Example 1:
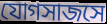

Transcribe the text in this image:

যোগসাজসে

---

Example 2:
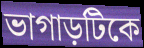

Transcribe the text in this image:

ভাগাড়টিকে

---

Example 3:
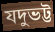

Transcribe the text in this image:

যদুভট্ট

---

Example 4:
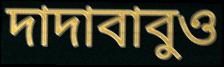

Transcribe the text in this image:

দাদাবাবুও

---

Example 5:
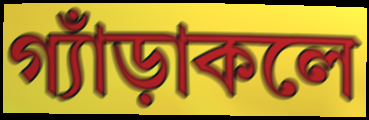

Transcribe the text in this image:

গ্যাঁড়াকলে